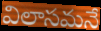
విలాసమనే